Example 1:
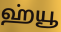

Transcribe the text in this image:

ஹ்யூ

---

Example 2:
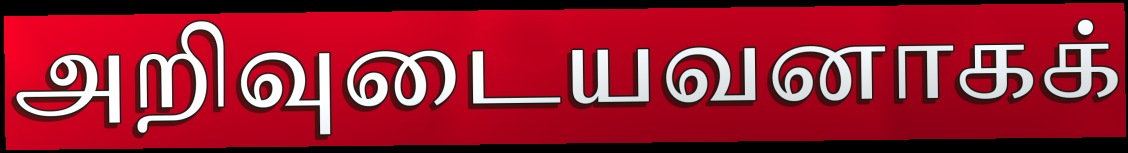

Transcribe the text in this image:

அறிவுடையவனாகக்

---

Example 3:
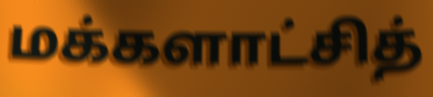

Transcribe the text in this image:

மக்களாட்சித்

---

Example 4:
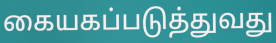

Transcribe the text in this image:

கையகப்படுத்துவது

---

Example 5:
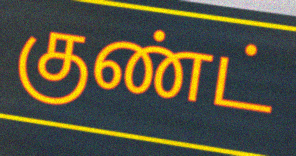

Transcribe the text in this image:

குண்ட்